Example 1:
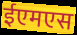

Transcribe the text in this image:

ईएमएस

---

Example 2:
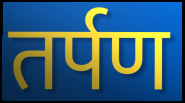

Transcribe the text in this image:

तर्पण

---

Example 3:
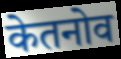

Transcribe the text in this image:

केतनोव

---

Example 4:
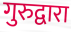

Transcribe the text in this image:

गुरुद्वारा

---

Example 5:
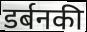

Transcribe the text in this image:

डर्बनकी